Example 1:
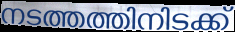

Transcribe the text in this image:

നടത്തത്തിനിടക്ക്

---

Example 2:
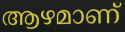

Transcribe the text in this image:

ആഴമാണ്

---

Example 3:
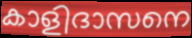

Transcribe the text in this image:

കാളിദാസനെ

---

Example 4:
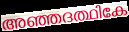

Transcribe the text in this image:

അഞ്ഞദത്ഥികേ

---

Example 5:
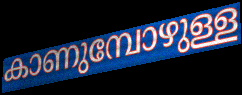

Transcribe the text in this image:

കാണുമ്പോഴുള്ള